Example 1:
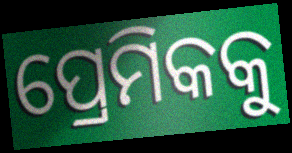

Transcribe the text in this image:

ପ୍ରେମିକକୁ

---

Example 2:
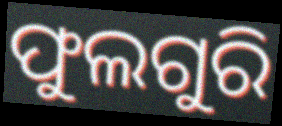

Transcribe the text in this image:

ଫୁଲଗୁରି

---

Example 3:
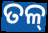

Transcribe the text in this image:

ତଳ୍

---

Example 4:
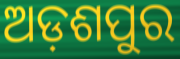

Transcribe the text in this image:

ଅଡ଼ଶପୁର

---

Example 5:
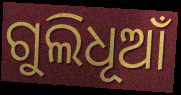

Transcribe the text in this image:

ଗୁଲିଧୂଆଁ